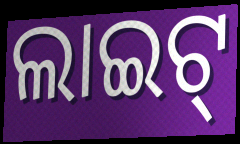
ଲାଇଟ୍